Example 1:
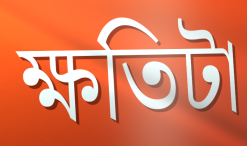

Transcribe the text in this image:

ক্ষতিটা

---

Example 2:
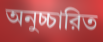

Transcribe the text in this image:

অনুচ্চারিত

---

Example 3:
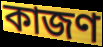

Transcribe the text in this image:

কাজণ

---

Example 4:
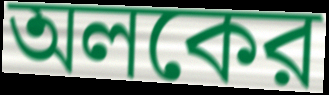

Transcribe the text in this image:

অলকের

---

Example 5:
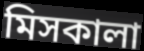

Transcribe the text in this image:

মিসকালা